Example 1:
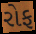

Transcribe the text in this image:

રોફ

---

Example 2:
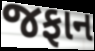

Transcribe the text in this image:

જફાન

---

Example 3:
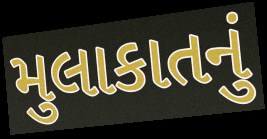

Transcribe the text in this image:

મુલાકાતનું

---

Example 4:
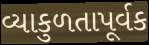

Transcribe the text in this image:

વ્યાકુળતાપૂર્વક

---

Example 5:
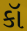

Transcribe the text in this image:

કૉ